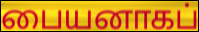
பையனாகப்